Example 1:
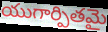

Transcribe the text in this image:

యుగార్పితమై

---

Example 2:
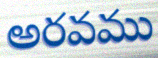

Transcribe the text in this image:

అరవము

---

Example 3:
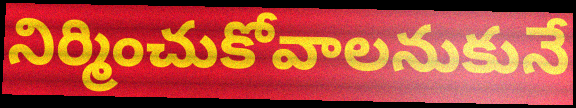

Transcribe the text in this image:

నిర్మించుకోవాలనుకునే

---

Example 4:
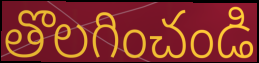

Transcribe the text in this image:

తొలగించండి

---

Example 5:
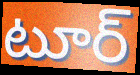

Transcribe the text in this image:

టూర్